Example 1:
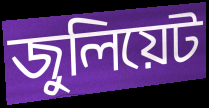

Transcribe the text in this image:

জুলিয়েট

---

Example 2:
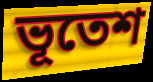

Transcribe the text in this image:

ভূতেশ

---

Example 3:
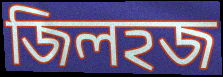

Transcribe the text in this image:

জিলহজ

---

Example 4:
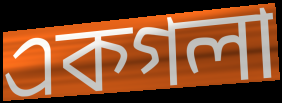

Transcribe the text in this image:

একগলা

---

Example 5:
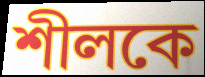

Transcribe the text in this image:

শীলকে